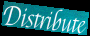
Distribute